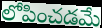
లోపించడమే